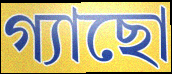
গ্যাছো